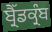
ਬ੍ਰੈੱਡਕ੍ਰੰਬ